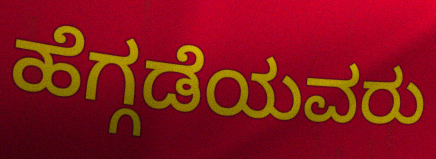
ಹೆಗ್ಗಡೆಯವರು